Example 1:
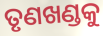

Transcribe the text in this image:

ତୃଣଖଣ୍ଡକୁ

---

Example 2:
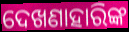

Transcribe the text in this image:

ଦେଖଣାହାରିଙ୍କ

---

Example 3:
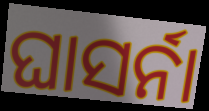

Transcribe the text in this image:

ଘାସର୍ନା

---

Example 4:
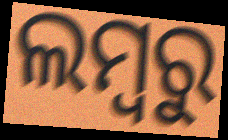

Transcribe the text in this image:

ଲମ୍ବରୁ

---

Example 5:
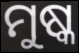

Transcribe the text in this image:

ମୁଷ୍କ